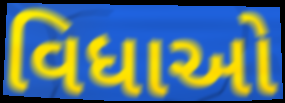
વિધાઓ